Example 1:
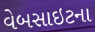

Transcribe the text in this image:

વેબસાઇટના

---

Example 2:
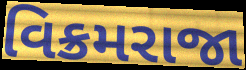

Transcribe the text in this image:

વિક્રમરાજા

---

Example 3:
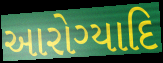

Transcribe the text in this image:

આરોગ્યાદિ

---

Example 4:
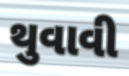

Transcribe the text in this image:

થુવાવી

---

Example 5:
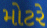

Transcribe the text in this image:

મોટરે